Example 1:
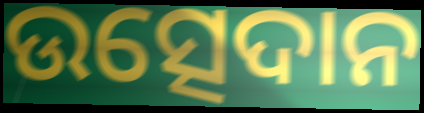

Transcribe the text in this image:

ଉତ୍ସେଦାନ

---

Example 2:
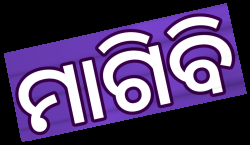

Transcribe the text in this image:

ମାଗିବି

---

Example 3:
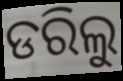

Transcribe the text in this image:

ଡରିଲୁ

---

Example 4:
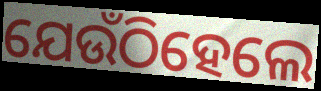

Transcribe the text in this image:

ଯେଉଁଠିହେଲେ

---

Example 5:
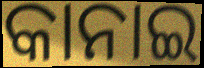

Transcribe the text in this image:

କାନାଇ